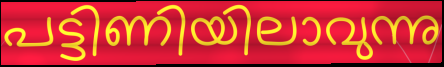
പട്ടിണിയിലാവുന്നു